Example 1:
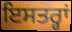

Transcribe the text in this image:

ਇਸਤਰ੍ਹਾਂ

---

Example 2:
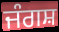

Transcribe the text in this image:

ਜੰਗਸ਼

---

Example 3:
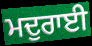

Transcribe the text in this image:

ਮਦੁਰਾਈ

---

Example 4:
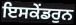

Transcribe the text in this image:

ਇਸਕੇਂਡਰੁਨ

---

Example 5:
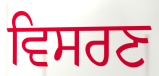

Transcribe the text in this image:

ਵਿਸਰਣ